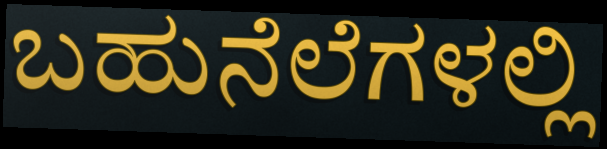
ಬಹುನೆಲೆಗಳಲ್ಲಿ